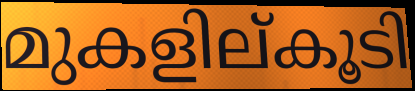
മുകളില്കൂടി